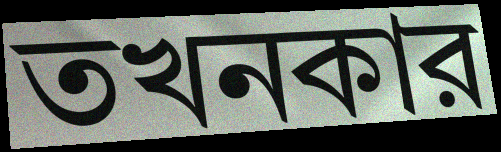
তখনকার